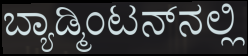
ಬ್ಯಾಡ್ಮಿಂಟನ್‌ನಲ್ಲಿ